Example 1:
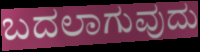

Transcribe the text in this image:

ಬದಲಾಗುವುದು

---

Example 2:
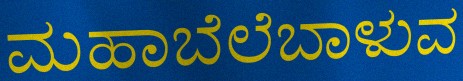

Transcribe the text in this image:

ಮಹಾಬೆಲೆಬಾಳುವ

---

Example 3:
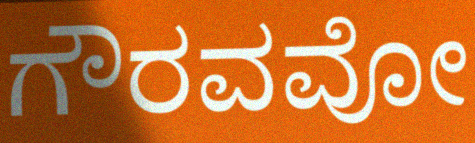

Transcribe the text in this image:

ಗೌರವವೋ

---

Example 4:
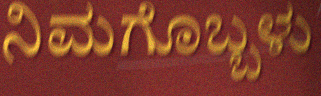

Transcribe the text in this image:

ನಿಮಗೊಬ್ಬಳು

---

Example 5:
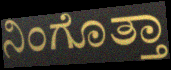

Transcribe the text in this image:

ನಿಂಗೊತ್ತಾ